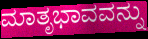
ಮಾತೃಭಾವವನ್ನು